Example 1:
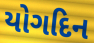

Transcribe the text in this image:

યોગદિન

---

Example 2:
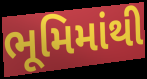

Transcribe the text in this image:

ભૂમિમાંથી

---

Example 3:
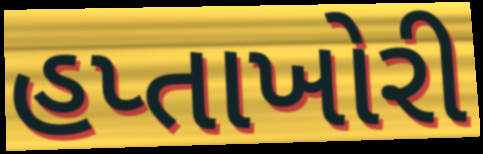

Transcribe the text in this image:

હપ્તાખોરી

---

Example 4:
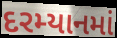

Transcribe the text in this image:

દરમ્યાનમાં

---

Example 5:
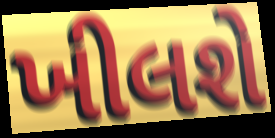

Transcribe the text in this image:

ખીલશે